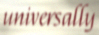
universally